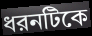
ধরনটিকে